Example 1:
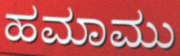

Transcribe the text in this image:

ಹಮಾಮು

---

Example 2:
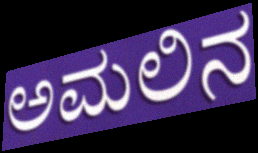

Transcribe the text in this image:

ಅಮಲಿನ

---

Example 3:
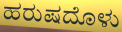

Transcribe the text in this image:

ಹರುಷದೊಳು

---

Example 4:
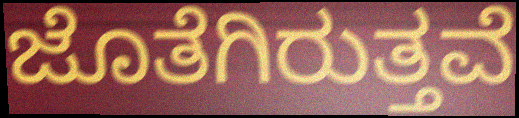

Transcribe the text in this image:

ಜೊತೆಗಿರುತ್ತವೆ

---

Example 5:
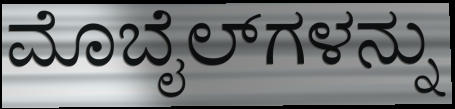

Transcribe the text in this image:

ಮೊಬೈಲ್‌ಗಳನ್ನು